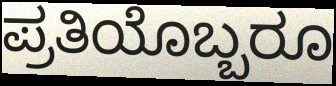
ಪ್ರತಿಯೊಬ್ಬರೂ